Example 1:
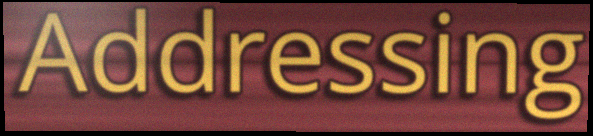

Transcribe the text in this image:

Addressing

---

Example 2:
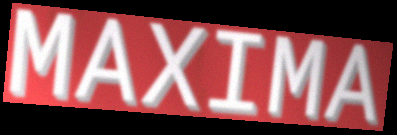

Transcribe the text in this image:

MAXIMA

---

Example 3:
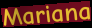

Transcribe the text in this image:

Mariana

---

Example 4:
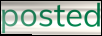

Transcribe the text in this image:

posted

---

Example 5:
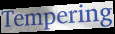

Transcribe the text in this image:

Tempering